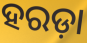
ହରଡ଼ା